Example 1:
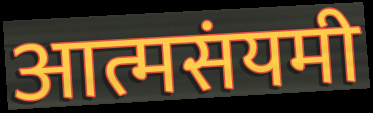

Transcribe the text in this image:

आत्मसंयमी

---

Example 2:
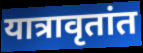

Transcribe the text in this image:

यात्रावृतांत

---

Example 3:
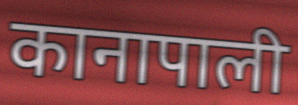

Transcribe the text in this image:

कानापाली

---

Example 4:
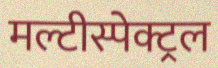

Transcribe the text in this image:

मल्टीस्पेक्ट्रल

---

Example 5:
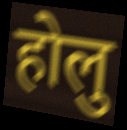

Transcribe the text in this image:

होलु